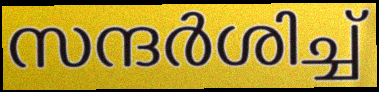
സന്ദർശിച്ച്